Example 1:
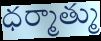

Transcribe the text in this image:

ధర్మాత్ము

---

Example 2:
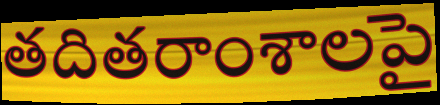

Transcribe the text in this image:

తదితరాంశాలపై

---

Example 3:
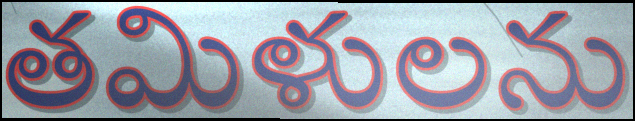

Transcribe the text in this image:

తమిళులను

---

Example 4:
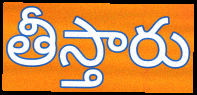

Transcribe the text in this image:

తీస్తారు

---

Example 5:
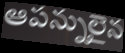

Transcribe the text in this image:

ఆపన్నులైన